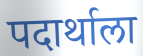
पदार्थाला